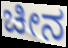
ಚೀನ